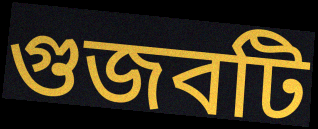
গুজবটি